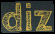
diz